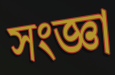
সংজ্ঞা